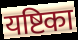
यष्टिका